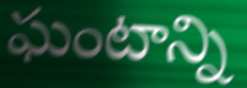
ఘంటాన్ని